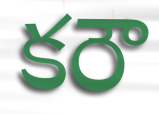
కరౌ